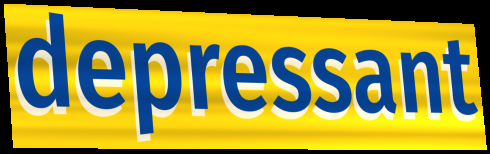
depressant